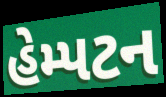
હેમ્પટન